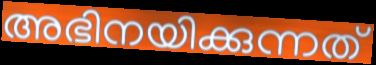
അഭിനയിക്കുന്നത്